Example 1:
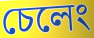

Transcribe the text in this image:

চেলেং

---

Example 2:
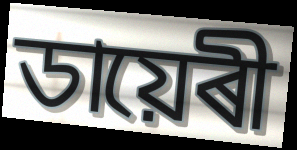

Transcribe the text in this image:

ডায়েৰী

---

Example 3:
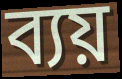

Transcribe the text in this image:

ব্যয়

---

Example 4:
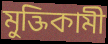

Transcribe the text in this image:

মুক্তিকামী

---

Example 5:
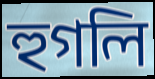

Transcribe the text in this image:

হুগলি